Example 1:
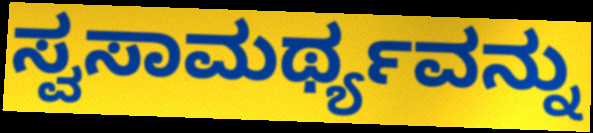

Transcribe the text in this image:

ಸ್ವಸಾಮರ್ಥ್ಯವನ್ನು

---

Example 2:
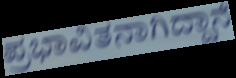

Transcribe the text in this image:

ಪ್ರಭಾವಿತನಾಗಿದ್ದಾನೆ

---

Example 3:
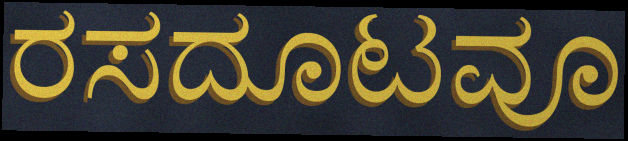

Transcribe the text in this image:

ರಸದೂಟವೂ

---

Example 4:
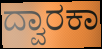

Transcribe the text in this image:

ದ್ವಾರಕಾ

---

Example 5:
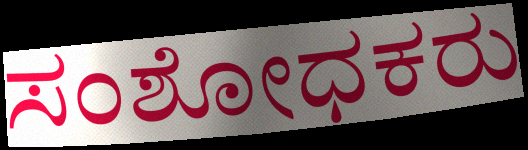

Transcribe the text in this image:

ಸಂಶೋಧಕರು